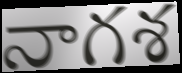
నాగశ